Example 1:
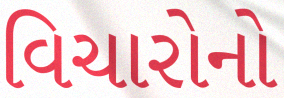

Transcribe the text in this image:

વિચારોનો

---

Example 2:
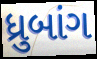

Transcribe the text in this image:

ધ્રુબાંગ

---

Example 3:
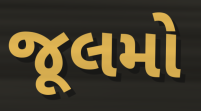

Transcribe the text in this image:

જૂલમો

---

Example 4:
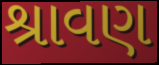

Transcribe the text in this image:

શ્રાવણ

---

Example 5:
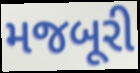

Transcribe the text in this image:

મજબૂરી